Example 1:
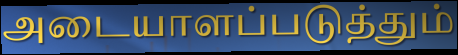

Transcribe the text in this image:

அடையாளப்படுத்தும்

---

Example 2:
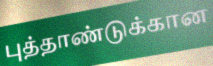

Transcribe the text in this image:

புத்தாண்டுக்கான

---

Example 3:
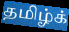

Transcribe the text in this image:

தமிழ்க்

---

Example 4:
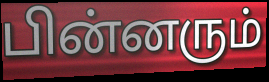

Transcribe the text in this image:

பின்னரும்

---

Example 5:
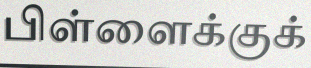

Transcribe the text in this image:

பிள்ளைக்குக்